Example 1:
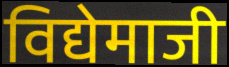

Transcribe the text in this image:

विद्येमाजी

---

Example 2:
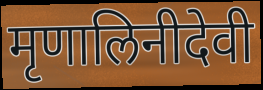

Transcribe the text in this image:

मृणालिनीदेवी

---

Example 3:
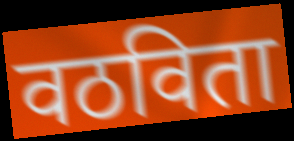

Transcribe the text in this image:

वठविता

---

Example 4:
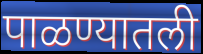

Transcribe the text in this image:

पाळण्यातली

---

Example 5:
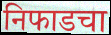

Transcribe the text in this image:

निफाडचा